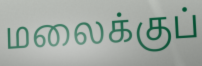
மலைக்குப்